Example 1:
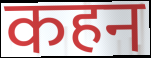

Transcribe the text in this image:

कहन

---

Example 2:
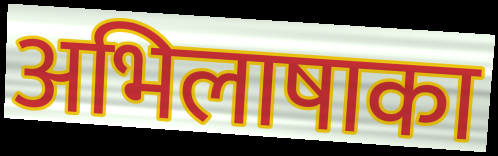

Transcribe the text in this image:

अभिलाषाका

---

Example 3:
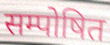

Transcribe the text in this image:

सम्पोषित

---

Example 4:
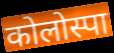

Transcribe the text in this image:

कोलोस्पा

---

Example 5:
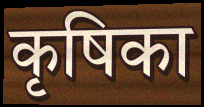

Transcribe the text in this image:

कृषिका